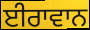
ਈਰਾਵਾਨ